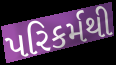
પરિકર્મથી